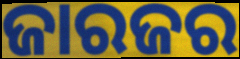
ଜାରଜର